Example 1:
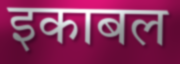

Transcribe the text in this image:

इकाबल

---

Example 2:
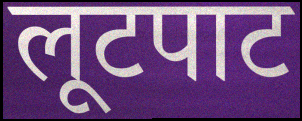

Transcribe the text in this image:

लूटपाट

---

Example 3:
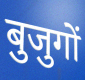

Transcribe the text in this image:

बुजुगों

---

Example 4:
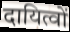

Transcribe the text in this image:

दायित्वों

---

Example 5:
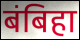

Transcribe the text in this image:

बंबिहा